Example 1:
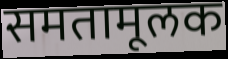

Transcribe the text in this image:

समतामूलक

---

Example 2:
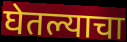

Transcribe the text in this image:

घेतल्याचा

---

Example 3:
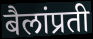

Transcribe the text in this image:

बैलांप्रती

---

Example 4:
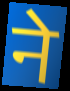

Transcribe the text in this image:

ने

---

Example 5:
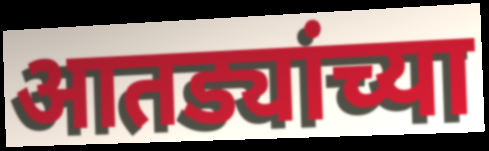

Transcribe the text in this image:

आतड्यांच्या